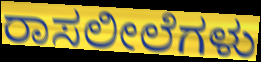
ರಾಸಲೀಲೆಗಳು